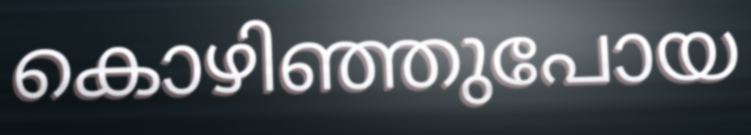
കൊഴിഞ്ഞുപോയ